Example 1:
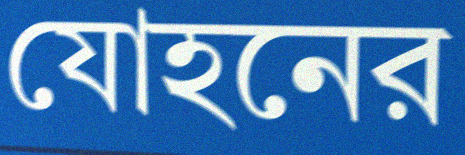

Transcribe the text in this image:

যোহনের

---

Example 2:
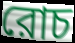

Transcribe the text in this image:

রোচ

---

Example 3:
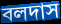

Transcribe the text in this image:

বলদাস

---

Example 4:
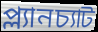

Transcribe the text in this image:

প্ল্যানচ্যাট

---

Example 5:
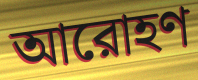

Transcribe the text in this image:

আরোহণ